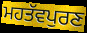
ਮਹਤੱਵਪੁਰਣ